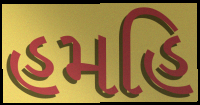
હમહિ